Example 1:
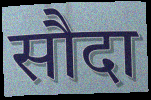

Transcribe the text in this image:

सौदा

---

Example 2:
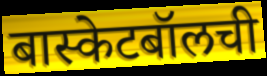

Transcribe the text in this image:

बास्केटबॉलची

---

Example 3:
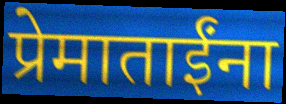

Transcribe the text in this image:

प्रेमाताईंना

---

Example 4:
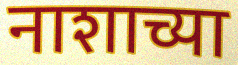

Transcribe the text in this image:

नाशाच्या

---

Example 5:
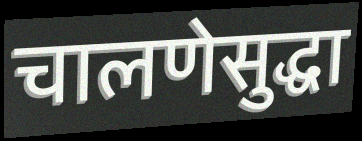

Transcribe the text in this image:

चालणेसुद्धा